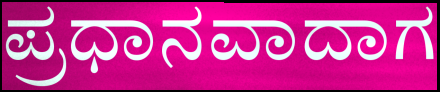
ಪ್ರಧಾನವಾದಾಗ